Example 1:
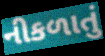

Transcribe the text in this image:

નીકળાતું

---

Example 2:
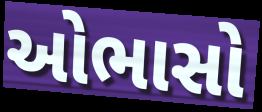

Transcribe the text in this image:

ઓભાસો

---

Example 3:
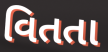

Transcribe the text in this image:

વિતતા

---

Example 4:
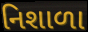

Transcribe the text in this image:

નિશાળા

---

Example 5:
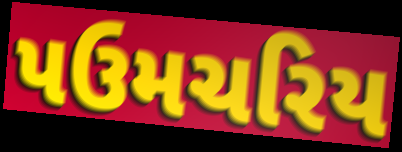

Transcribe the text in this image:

પઉમચરિય